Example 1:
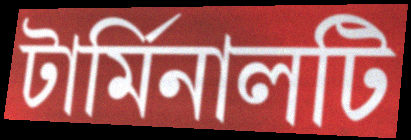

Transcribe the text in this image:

টার্মিনালটি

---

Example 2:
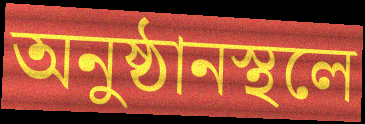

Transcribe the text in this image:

অনুষ্ঠানস্থলে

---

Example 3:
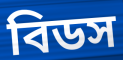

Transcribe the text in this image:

বিডস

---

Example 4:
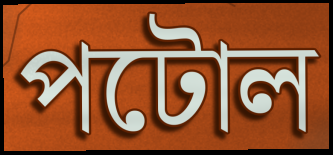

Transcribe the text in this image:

পটোল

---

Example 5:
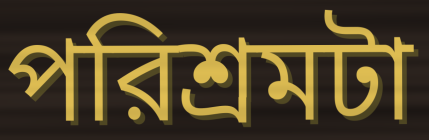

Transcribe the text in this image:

পরিশ্রমটা